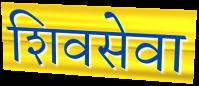
शिवसेवा